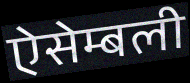
ऐसेम्बली